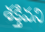
శక్తివని